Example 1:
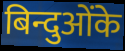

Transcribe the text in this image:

बिन्दुओंके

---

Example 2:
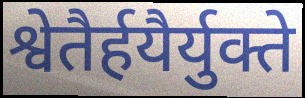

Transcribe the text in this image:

श्वेतैर्हयैर्युक्ते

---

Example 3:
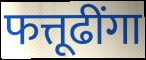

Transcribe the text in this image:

फत्तूढींगा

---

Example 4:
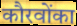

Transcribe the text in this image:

कौरवोंका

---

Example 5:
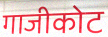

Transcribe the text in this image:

गाजीकोट